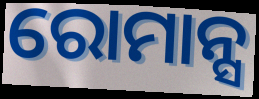
ରୋମାନ୍ସ